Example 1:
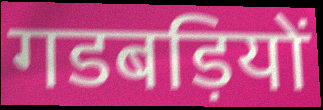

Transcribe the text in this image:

गडबड़ियों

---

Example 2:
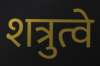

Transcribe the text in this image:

शत्रुत्वे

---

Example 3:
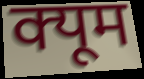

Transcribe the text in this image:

क्यूम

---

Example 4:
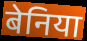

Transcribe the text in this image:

बेनिया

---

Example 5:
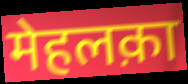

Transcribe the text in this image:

मेहलक़ा